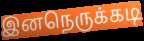
இனநெருக்கடி